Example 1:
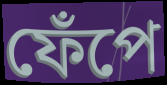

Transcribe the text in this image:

ফেঁপে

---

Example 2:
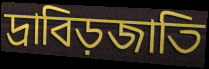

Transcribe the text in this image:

দ্রাবিড়জাতি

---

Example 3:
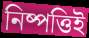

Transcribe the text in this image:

নিষ্পত্তিই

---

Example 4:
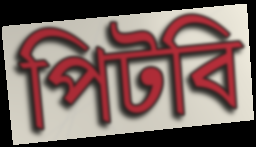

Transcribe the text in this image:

পিটবি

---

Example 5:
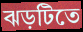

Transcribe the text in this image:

ঝড়টিতে